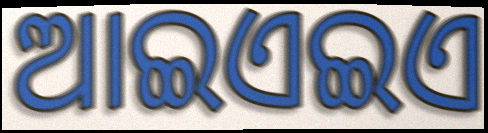
ଆଇଏଇଏ